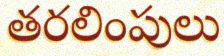
తరలింపులు